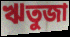
ঋতুজা